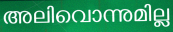
അലിവൊന്നുമില്ല